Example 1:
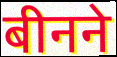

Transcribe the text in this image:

बीनने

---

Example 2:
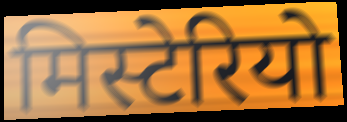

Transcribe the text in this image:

मिस्टेरियो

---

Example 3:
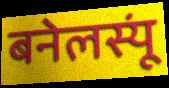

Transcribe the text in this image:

बनेलस्यूं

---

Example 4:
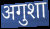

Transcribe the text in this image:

अगुशा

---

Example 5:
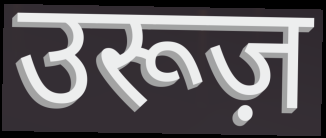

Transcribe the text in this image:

उरूज़